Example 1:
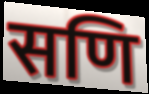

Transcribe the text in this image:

सणि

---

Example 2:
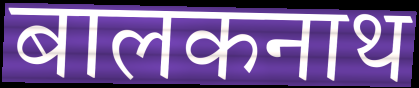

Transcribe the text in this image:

बालकनाथ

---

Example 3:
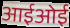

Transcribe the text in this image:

आईओई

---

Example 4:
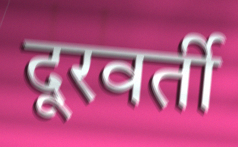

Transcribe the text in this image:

दूरवर्ती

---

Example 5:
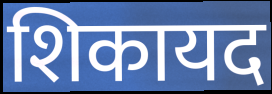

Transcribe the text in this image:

शिकायद